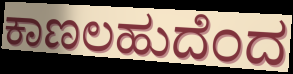
ಕಾಣಲಹುದೆಂದ